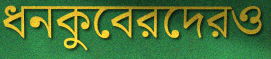
ধনকুবেরদেরও